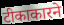
टीकाकारने